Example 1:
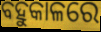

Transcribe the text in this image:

ବହୁକାଳରେ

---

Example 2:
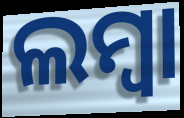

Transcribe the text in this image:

ଲମ୍ୱା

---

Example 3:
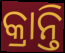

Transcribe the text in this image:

କ୍ରାନ୍ତି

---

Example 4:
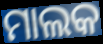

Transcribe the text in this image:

ମାଲକ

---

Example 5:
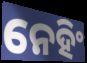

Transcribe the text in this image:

ନେହିଂ